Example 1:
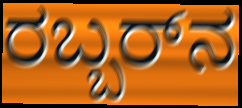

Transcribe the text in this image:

ರಬ್ಬರ್‌ನ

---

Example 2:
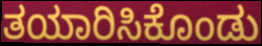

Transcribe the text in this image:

ತಯಾರಿಸಿಕೊಂಡು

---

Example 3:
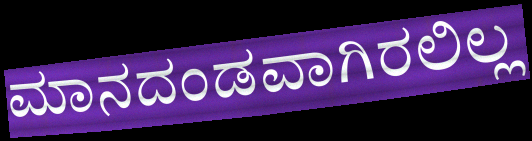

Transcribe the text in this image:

ಮಾನದಂಡವಾಗಿರಲಿಲ್ಲ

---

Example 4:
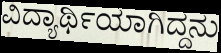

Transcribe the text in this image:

ವಿದ್ಯಾರ್ಥಿಯಾಗಿದ್ದನು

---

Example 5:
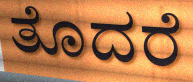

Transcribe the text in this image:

ತೊದರೆ